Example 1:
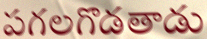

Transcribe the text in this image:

పగలగొడతాడు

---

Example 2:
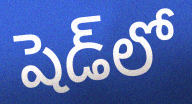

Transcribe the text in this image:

షెడ్‌లో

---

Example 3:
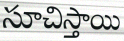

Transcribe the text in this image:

సూచిస్తాయి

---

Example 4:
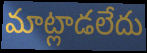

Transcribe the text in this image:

మాట్లాడలేదు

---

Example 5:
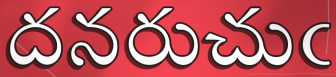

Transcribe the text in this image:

దనరుచుఁ